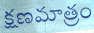
క్షణమాత్రం